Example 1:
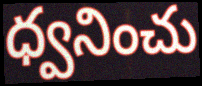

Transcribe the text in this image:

ధ్వనించు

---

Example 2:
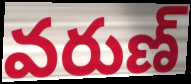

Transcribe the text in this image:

వరుణ్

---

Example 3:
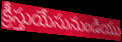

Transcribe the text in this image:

క్రీస్తుయేసునుండియు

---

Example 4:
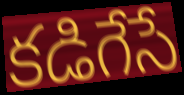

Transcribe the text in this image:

కడిగేసే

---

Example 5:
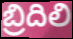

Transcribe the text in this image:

బ్రిదిలి